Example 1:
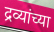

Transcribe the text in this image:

द्रव्यांच्या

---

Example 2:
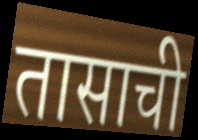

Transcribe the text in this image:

तासाची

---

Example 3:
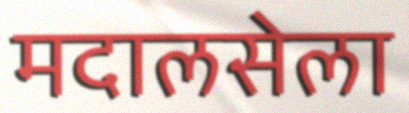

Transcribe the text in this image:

मदालसेला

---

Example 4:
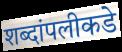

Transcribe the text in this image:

शब्दांपलीकडे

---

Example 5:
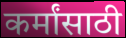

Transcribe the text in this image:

कर्मांसाठी